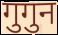
गुगुन